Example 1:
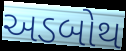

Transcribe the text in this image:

અડબોથ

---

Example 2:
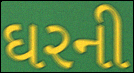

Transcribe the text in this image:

ઘરની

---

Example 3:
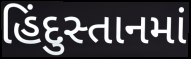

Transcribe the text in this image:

હિંદુસ્તાનમાં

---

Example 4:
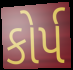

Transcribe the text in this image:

કોર્પ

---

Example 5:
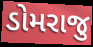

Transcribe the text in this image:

ડોમરાજુ